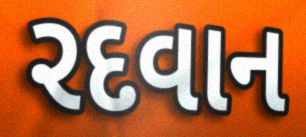
રદવાન